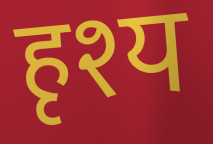
हृश्य